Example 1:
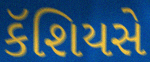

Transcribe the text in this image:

કૅશિયસે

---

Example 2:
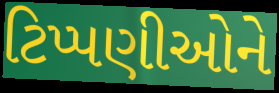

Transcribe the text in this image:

ટિપ્પણીઓને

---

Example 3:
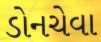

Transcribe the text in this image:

ડોનચેવા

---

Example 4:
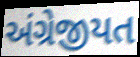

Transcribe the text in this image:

અંગ્રેજીયત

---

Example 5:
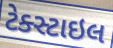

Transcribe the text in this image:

ટેક્સ્ટાઇલ